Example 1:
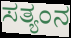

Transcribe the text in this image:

ಸತ್ಯಂನ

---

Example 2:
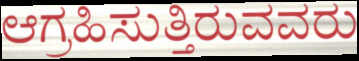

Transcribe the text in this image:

ಆಗ್ರಹಿಸುತ್ತಿರುವವರು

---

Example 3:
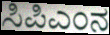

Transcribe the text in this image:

ಸಿಪಿಎಂನ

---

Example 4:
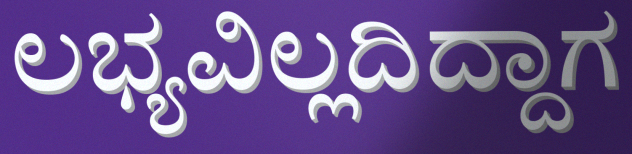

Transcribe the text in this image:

ಲಭ್ಯವಿಲ್ಲದಿದ್ದಾಗ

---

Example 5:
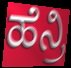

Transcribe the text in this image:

ಹೆನ್ರಿ